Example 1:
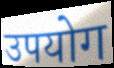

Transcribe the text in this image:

उपयोग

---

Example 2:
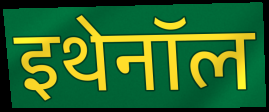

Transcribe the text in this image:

इथेनॉल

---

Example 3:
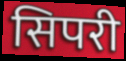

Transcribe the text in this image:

सिपरी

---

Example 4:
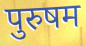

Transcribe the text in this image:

पुरुषम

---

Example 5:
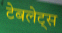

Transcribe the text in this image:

टेबलेट्स